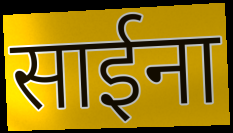
साईना